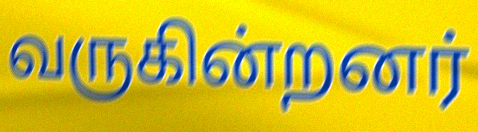
வருகின்றனர்